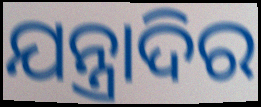
ଯନ୍ତ୍ରାଦିର